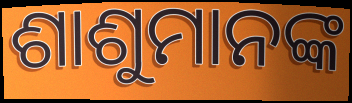
ଶାଶୁମାନଙ୍କ